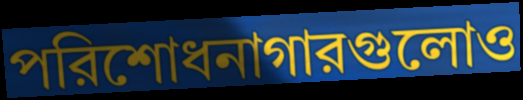
পরিশোধনাগারগুলোও